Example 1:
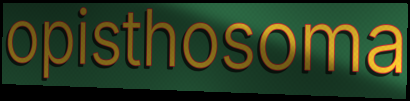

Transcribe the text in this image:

opisthosoma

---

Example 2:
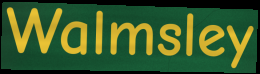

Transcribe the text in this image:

Walmsley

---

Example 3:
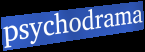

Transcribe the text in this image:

psychodrama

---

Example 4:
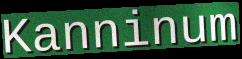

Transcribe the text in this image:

Kanninum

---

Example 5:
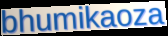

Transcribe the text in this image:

bhumikaoza